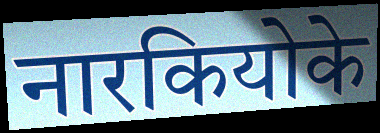
नारकियोके